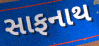
સાફનાથ